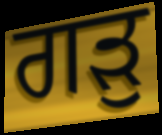
ਗੜੁ